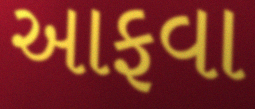
આફવા